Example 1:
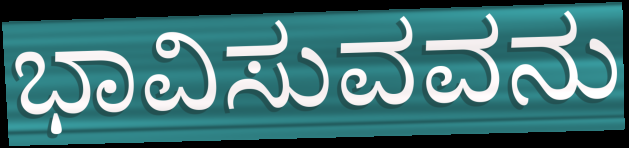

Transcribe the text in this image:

ಭಾವಿಸುವವನು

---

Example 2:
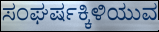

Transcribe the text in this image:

ಸಂಘರ್ಷಕ್ಕಿಳಿಯುವ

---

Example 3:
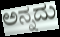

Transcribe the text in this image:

ಅನ್ನದು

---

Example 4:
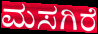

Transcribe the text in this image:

ಮಸಗಿರೆ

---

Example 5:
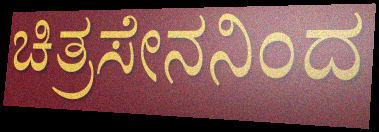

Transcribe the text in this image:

ಚಿತ್ರಸೇನನಿಂದ